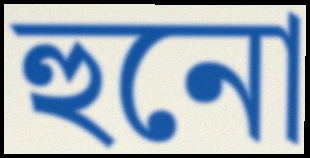
হুনো